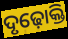
ଦୃଢ଼ୋକ୍ତି